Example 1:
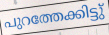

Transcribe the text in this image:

പുറത്തേക്കിട്ടു്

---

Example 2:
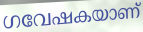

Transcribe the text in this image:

ഗവേഷകയാണ്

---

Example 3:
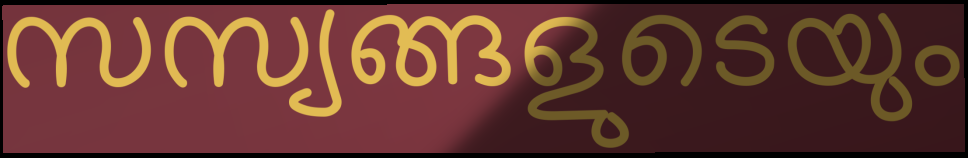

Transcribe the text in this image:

സസ്യങ്ങളുടെയും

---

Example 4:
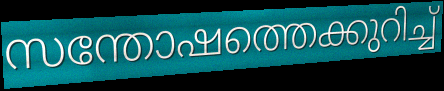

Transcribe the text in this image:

സന്തോഷത്തെക്കുറിച്ച്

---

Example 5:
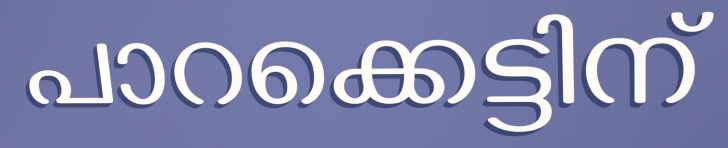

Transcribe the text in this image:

പാറക്കെട്ടിന്